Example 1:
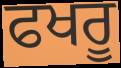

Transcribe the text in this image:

ਫਖਰੂ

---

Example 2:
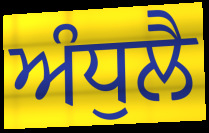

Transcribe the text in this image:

ਅੰਧੁਲੈ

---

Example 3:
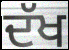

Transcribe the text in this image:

ਦੱਖ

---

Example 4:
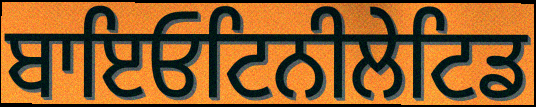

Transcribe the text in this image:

ਬਾਇਓਟਿਨੀਲੇਟਿਡ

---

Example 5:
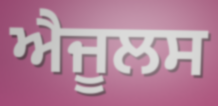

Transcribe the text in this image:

ਐਜੂਲਸ